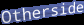
Otherside